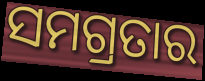
ସମଗ୍ରତାର